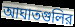
আঘাতগুলির